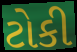
ટોકી